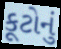
કૂટોનું